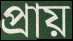
প্রায়